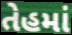
તેહમાં